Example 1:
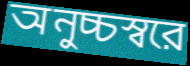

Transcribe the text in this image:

অনুচ্চস্বরে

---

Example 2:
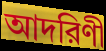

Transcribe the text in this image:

আদরিণী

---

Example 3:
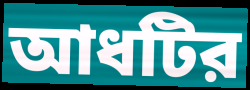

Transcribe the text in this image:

আধটির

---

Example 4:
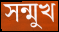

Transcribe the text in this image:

সন্মুখ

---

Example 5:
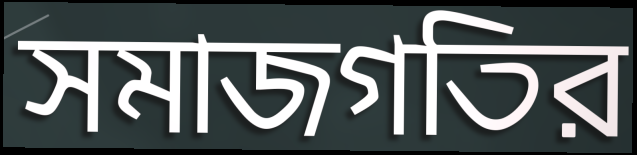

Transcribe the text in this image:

সমাজগতির